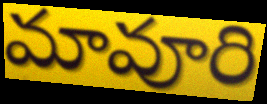
మావూరి